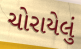
ચોરાયેલું